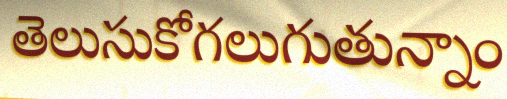
తెలుసుకోగలుగుతున్నాం